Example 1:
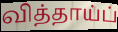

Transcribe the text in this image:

வித்தாய்ப்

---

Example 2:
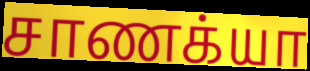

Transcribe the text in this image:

சாணக்யா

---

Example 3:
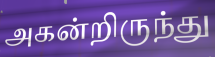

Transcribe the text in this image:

அகன்றிருந்து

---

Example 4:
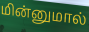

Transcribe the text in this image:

மின்னுமால்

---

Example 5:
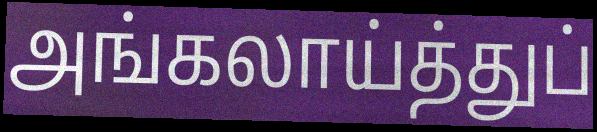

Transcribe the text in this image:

அங்கலாய்த்துப்